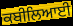
ਕਬੀਲਿਆਈ